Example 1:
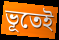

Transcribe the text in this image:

ভূতেই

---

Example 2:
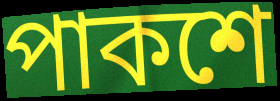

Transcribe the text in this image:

পাকশে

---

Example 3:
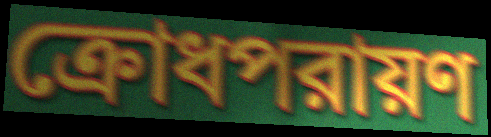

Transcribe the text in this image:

ক্রোধপরায়ণ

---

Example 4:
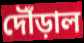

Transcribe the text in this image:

দৌঁড়াল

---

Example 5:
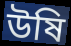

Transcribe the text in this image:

উষি